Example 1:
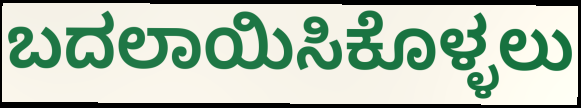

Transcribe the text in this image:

ಬದಲಾಯಿಸಿಕೊಳ್ಳಲು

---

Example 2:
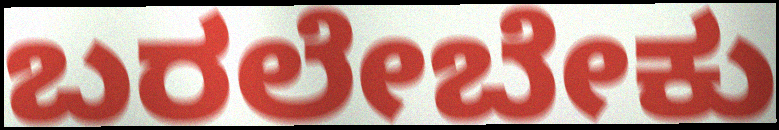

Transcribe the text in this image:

ಬರಲೇಬೇಕು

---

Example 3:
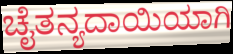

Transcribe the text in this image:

ಚೈತನ್ಯದಾಯಿಯಾಗಿ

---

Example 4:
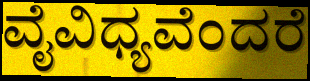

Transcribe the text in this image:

ವೈವಿಧ್ಯವೆಂದರೆ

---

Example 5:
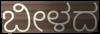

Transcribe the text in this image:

ಬೀಳದ